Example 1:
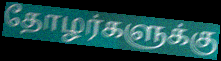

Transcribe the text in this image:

தோழர்களுக்கு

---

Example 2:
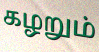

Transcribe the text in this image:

கழறும்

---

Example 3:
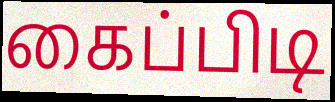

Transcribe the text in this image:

கைப்பிடி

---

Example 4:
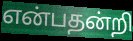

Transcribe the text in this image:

என்பதன்றி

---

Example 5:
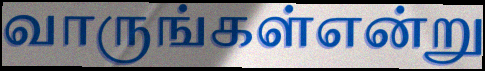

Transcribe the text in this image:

வாருங்கள்என்று